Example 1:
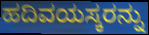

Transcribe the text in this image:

ಹದಿವಯಸ್ಕರನ್ನು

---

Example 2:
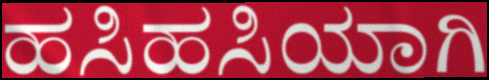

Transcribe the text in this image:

ಹಸಿಹಸಿಯಾಗಿ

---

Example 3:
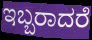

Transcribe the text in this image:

ಇಬ್ಬರಾದರೆ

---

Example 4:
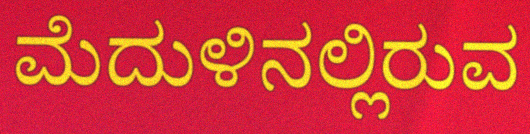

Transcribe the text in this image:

ಮೆದುಳಿನಲ್ಲಿರುವ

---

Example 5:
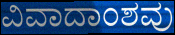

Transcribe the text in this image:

ವಿವಾದಾಂಶವು